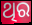
ଥିର